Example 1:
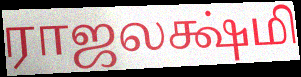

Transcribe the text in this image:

ராஜலக்ஷ்மி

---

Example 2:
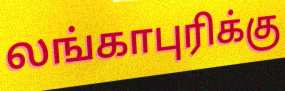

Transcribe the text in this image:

லங்காபுரிக்கு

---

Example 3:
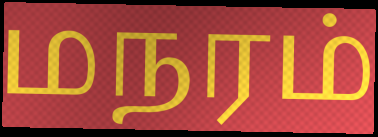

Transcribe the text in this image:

மநரம்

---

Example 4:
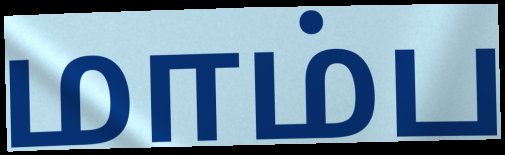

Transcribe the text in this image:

மாம்ப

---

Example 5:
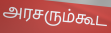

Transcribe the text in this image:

அரசரும்கூட